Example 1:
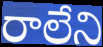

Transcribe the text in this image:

రాలేని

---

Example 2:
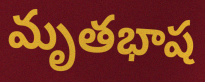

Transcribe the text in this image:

మృతభాష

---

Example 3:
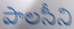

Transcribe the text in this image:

పాలసీని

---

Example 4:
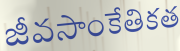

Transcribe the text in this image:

జీవసాంకేతికత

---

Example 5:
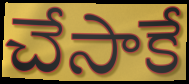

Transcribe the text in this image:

చేసాకే